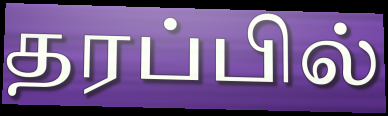
தரப்பில்